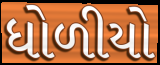
ધોળીયો